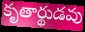
కృతార్థుడవు